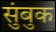
सुंबुक